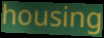
housing